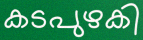
കടപുഴകി